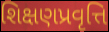
શિક્ષણપ્રવૃત્તિ